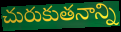
చురుకుతనాన్ని